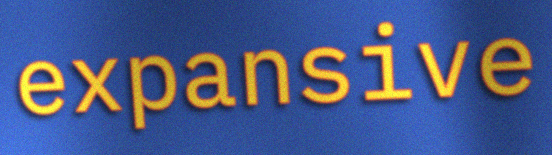
expansive